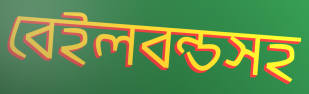
বেইলবন্ডসহ